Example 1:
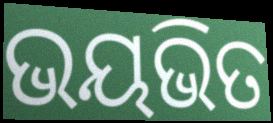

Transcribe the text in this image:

ଭୟଭିତ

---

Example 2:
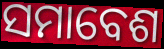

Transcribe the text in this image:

ସମାବେଶ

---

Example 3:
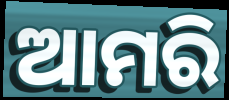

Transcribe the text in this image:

ଆମରି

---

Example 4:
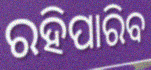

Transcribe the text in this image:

ରହିପାରିବ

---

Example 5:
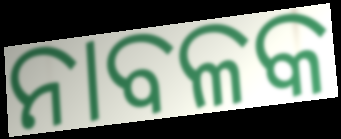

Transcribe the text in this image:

ନାବଳକ